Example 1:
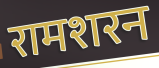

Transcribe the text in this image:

रामशरन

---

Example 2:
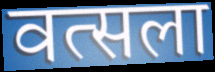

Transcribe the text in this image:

वत्सला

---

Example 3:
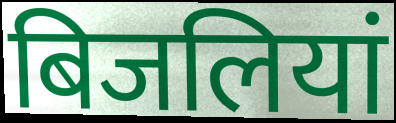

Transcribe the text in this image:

बिजलियां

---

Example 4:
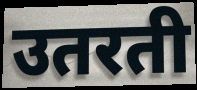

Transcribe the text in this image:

उतरती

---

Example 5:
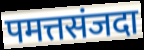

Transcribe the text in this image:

पमत्तसंजदा